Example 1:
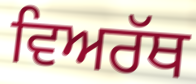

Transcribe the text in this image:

ਵਿਅਰੱਥ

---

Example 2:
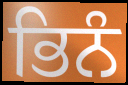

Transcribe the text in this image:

ਭਿਨੰ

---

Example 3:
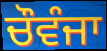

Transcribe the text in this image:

ਚੌਵੰਜਾ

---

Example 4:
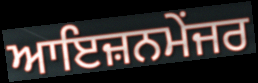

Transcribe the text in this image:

ਆਇਜ਼ਨਮੇਂਜਰ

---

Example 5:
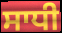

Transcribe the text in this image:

ਸਾਧੀ